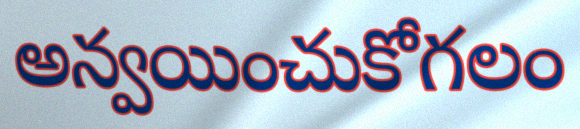
అన్వయించుకోగలం